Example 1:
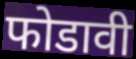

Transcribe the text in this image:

फोडावी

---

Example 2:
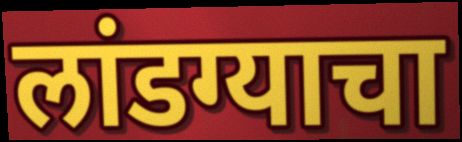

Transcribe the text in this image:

लांडग्याचा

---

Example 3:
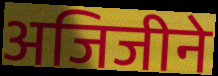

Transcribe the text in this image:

अजिजीने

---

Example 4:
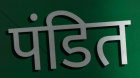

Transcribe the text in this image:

पंडित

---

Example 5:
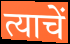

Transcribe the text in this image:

त्याचें